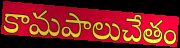
కామపాలుచేతం